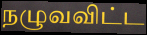
நழுவவிட்ட